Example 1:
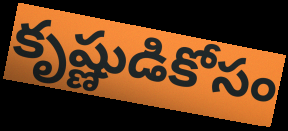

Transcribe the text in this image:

కృష్ణుడికోసం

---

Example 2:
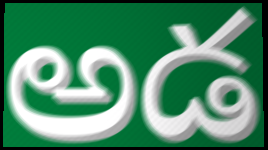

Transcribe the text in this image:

అడ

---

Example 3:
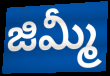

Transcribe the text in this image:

జిమ్మీ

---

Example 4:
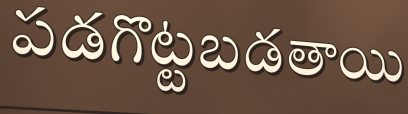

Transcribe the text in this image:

పడగొట్టబడతాయి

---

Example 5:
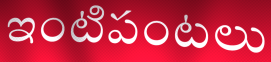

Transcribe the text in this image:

ఇంటిపంటలు